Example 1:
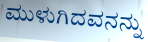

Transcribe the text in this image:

ಮುಳುಗಿದವನನ್ನು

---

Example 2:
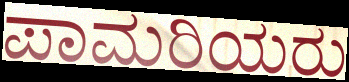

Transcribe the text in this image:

ಪಾಮರಿಯರು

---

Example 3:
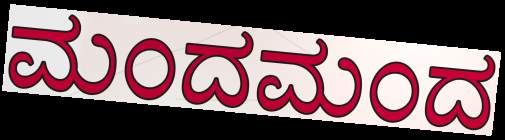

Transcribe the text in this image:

ಮಂದಮಂದ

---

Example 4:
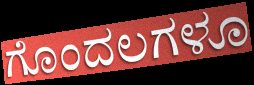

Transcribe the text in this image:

ಗೊಂದಲಗಳೂ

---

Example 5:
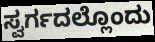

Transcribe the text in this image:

ಸ್ವರ್ಗದಲ್ಲೊಂದು